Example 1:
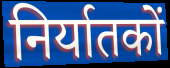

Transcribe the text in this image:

निर्यातकों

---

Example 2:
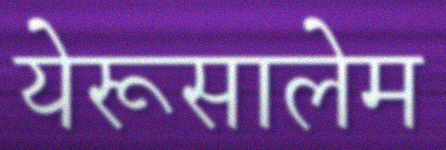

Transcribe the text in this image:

येरूसालेम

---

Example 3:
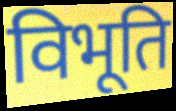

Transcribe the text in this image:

विभूति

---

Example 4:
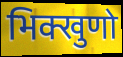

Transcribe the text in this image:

भिक्खुणो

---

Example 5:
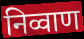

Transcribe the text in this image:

निव्वाण